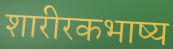
शारीरकभाष्य